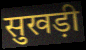
सुखड़ी